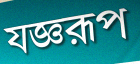
যজ্ঞরূপ